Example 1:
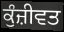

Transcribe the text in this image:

ਕੁੰਜ਼ੀਵਤ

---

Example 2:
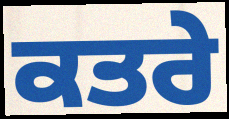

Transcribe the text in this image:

ਕਤਰੇ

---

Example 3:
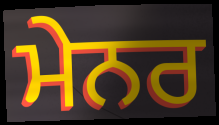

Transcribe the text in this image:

ਮੇਨਰ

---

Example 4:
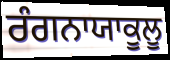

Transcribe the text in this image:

ਰੰਗਨਾਯਾਕੂਲੂ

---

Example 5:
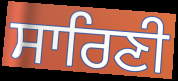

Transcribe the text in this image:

ਸਾਰਿਣੀ